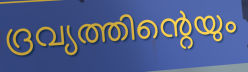
ദ്രവ്യത്തിന്റെയും